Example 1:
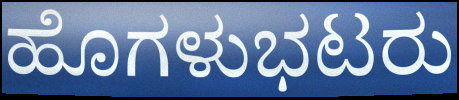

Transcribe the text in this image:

ಹೊಗಳುಭಟರು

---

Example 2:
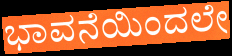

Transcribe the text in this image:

ಭಾವನೆಯಿಂದಲೇ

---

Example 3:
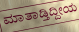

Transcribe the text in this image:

ಮಾತಾಡ್ತಿದ್ದೀಯ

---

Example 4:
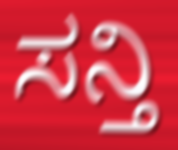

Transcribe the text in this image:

ಸನ್ತಿ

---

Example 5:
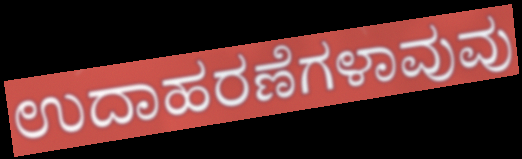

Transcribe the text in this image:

ಉದಾಹರಣೆಗಳಾವುವು